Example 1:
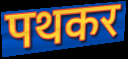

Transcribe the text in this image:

पथकर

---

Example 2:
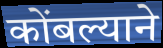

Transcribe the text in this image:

कोंबल्याने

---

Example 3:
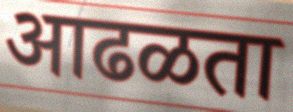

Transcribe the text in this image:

आढळता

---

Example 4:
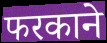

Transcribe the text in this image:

फरकाने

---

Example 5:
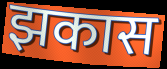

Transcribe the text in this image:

झकास